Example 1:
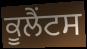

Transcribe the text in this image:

ਕੂਲੈਂਟਸ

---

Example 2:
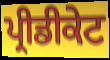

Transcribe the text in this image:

ਪ੍ਰੀਡੀਕੇਟ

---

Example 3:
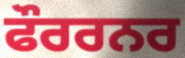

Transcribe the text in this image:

ਫੌਰਰਨਰ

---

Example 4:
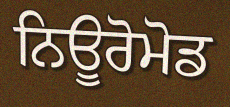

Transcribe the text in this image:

ਨਿਊਰੋਮੋਡ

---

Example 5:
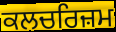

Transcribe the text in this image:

ਕਲਚਰਿਜ਼ਮ